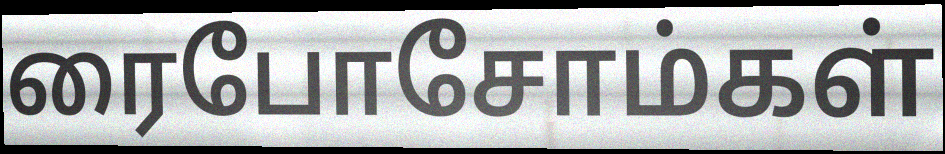
ரைபோசோம்கள்